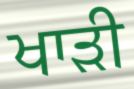
ਖਾਡ਼ੀ